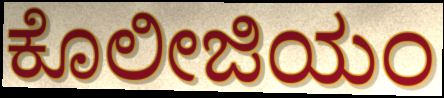
ಕೊಲೀಜಿಯಂ